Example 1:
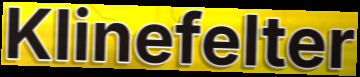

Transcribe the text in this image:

Klinefelter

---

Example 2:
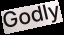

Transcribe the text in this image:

Godly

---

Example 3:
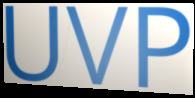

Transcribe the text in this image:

UVP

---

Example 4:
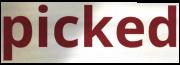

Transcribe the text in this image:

picked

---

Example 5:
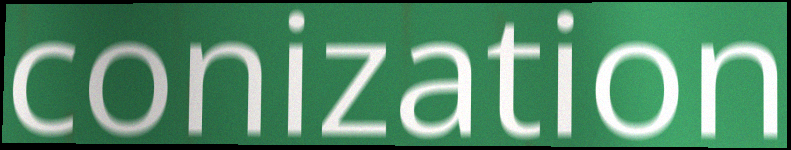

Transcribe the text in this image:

conization